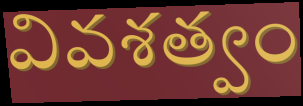
వివశత్వం